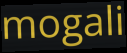
mogali